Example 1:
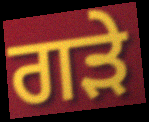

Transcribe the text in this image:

ਗੜੇ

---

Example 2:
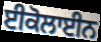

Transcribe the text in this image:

ਈਕੋਲਾਈਨ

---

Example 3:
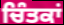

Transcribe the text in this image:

ਚਿੰਤਕਾਂ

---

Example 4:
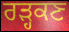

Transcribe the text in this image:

ਰੜ੍ਹਕਣ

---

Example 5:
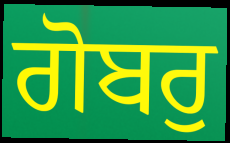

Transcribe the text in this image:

ਗੋਬਰੁ